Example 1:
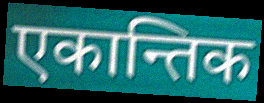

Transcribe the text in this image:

एकान्तिक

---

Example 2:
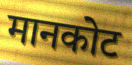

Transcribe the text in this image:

मानकोट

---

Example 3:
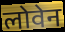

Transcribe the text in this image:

लोवेन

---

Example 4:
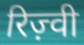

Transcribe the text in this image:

रिज़्वी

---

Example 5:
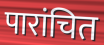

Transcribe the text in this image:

पारांचित